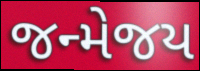
જન્મેજય